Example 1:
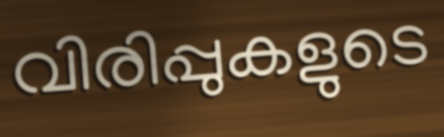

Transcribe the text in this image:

വിരിപ്പുകളുടെ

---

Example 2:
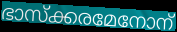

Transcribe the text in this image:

ഭാസ്ക്കരമേനോന്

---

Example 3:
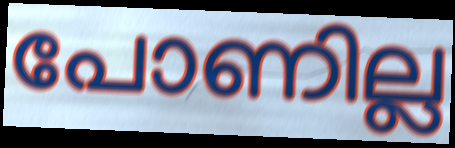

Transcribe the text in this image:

പോണില്ല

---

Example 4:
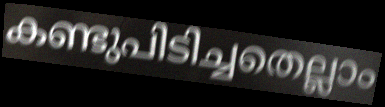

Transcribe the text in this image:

കണ്ടുപിടിച്ചതെല്ലാം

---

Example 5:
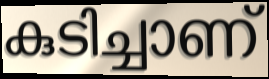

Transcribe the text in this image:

കുടിച്ചാണ്